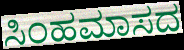
ಸಿಂಹಮಾಸದ